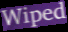
Wiped